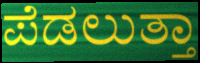
ಪೆಡಲುತ್ತಾ